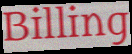
Billing